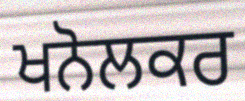
ਖਨੋਲਕਰ